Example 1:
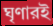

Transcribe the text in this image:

ঘৃণারই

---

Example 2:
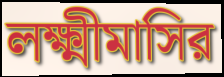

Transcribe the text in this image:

লক্ষ্মীমাসির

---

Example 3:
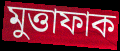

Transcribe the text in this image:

মুত্তাফাক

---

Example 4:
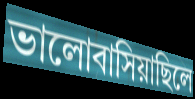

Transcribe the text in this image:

ভালোবাসিয়াছিলে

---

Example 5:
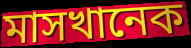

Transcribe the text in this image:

মাসখানেক